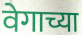
वेगाच्या